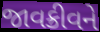
જાવક્રીવને